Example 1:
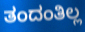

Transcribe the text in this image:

ತಂದಂತಿಲ್ಲ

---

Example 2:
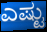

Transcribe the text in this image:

ಎಷ್ಟು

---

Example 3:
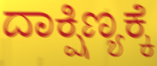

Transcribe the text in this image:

ದಾಕ್ಷಿಣ್ಯಕ್ಕೆ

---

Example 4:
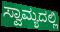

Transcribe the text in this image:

ಸ್ವಾಮ್ಯದಲ್ಲಿ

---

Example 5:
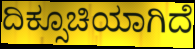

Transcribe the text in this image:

ದಿಕ್ಸೂಚಿಯಾಗಿದೆ